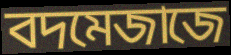
বদমেজাজে